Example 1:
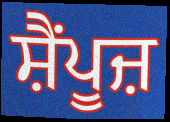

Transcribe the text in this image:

ਸ਼ੈਂਪੂਜ਼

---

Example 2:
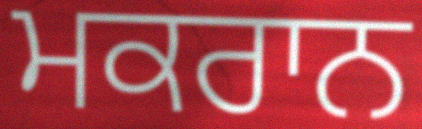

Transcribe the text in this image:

ਮਕਰਾਨ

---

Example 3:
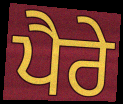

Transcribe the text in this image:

ਪੈਰੇ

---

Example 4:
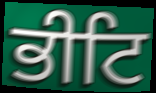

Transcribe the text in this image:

ਭੀਟਿ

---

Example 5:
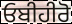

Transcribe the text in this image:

ਓਬੀਹੀਰੋ